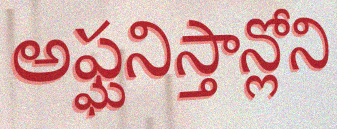
అఫ్ఘనిస్తాన్లోని